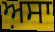
ਅ਼ਸਾ